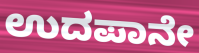
ಉದಪಾನೇ